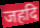
जहदि